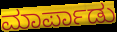
ಮಾರ್ಪಾಡು